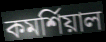
কমর্শিয়াল